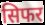
सिफर